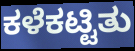
ಕಳೆಕಟ್ಟಿತು